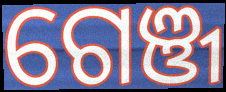
ଗେଞ୍ଜ